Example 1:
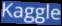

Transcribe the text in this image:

Kaggle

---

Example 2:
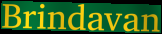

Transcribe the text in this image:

Brindavan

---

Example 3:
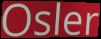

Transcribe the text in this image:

Osler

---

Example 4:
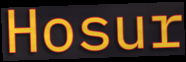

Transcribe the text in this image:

Hosur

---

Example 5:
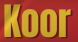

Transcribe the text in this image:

Koor